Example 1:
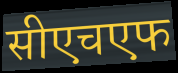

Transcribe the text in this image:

सीएचएफ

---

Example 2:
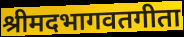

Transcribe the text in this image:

श्रीमदभागवतगीता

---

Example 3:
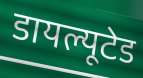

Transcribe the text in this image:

डायल्यूटेड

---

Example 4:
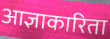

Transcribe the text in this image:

आज्ञाकारिता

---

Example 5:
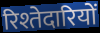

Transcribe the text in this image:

रिश्तेदारियों